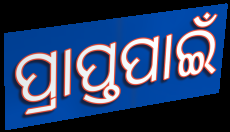
ପ୍ରାପ୍ତପାଇଁ